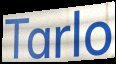
Tarlo